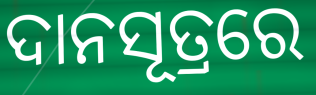
ଦାନସୂତ୍ରରେ